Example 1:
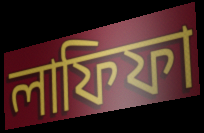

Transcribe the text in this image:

লাফিফা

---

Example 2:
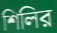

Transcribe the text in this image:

শিলির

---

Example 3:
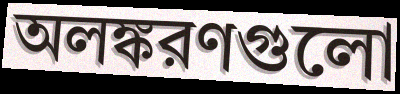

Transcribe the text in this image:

অলঙ্করণগুলো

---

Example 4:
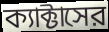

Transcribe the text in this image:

ক্যাক্টাসের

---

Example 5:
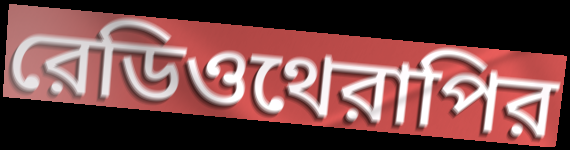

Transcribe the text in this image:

রেডিওথেরাপির